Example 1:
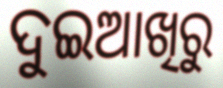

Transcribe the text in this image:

ଦୁଇଆଖିରୁ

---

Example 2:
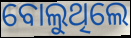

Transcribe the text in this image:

ବୋଲୁଥିଲେ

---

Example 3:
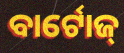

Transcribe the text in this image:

ବାର୍ଟୋଜ୍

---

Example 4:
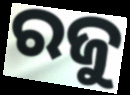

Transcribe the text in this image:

ରଜୁ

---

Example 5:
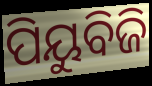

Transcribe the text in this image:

ପିୟୁବିଜି